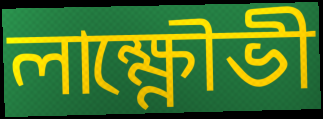
লাক্ষ্ণৌভী